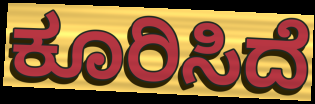
ಕೂರಿಸಿದೆ